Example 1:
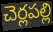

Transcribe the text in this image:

చెర్లపల్లి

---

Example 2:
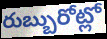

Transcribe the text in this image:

రుబ్బురోట్లో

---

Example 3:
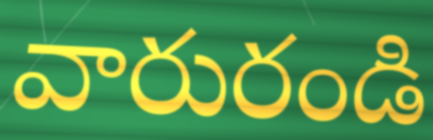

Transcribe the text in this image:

వారురండి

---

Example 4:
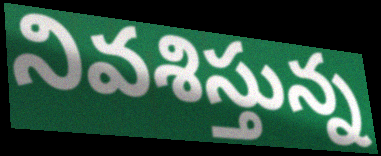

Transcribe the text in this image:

నివశిస్తున్న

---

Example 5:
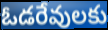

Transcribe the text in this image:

ఓడరేవులకు